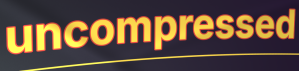
uncompressed